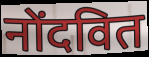
नोंदवित